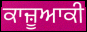
ਕਾਜ਼ੂਆਕੀ